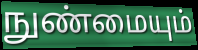
நுண்மையும்